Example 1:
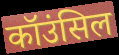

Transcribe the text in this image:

कॉउंसिल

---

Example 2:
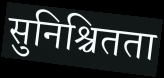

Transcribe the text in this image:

सुनिश्चितता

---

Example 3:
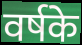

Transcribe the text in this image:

वर्षके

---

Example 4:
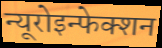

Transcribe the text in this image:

न्यूरोइन्फेक्शन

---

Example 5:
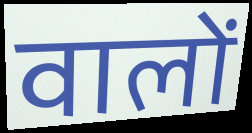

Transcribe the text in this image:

वालों